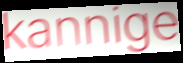
kannige